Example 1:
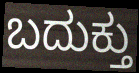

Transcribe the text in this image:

ಬದುಕ್ತು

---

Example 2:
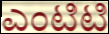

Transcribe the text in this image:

ಎಂಟಿಟಿ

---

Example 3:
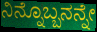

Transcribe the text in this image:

ನಿನ್ನೊಬ್ಬನನ್ನೇ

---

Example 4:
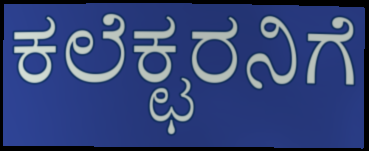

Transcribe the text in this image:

ಕಲೆಕ್ಟರನಿಗೆ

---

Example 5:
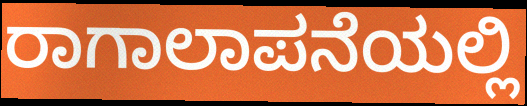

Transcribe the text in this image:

ರಾಗಾಲಾಪನೆಯಲ್ಲಿ